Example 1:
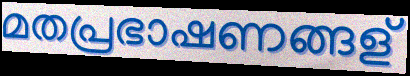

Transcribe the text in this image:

മതപ്രഭാഷണങ്ങള്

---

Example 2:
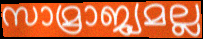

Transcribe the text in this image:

സാമ്രാജ്യമല്ല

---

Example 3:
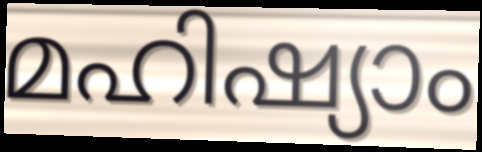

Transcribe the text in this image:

മഹിഷ്യാം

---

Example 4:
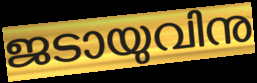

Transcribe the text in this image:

ജടായുവിനു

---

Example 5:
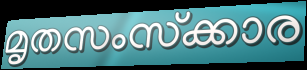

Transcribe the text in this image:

മൃതസംസ്‌ക്കാര